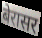
बेरासर